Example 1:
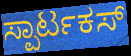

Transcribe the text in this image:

ಸ್ಪಾರ್ಟಕಸ್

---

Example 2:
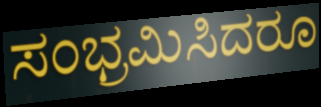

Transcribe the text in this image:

ಸಂಭ್ರಮಿಸಿದರೂ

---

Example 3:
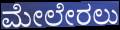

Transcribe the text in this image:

ಮೇಲೇರಲು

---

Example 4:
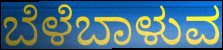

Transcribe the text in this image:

ಬೆಳೆಬಾಳುವ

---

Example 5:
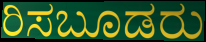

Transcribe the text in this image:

ರಿಸಬೂಡರು